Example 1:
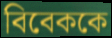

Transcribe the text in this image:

বিবেককে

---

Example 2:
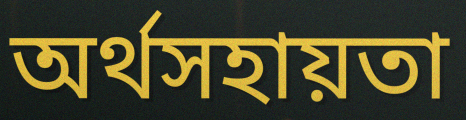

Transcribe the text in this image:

অর্থসহায়তা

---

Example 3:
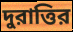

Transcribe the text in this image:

দুরাত্তির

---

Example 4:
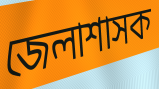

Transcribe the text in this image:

জেলাশাসক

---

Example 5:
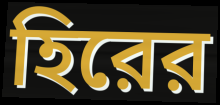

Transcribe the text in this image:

হিরের